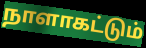
நாளாகட்டும்